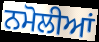
ਨਮੋਲੀਆਂ